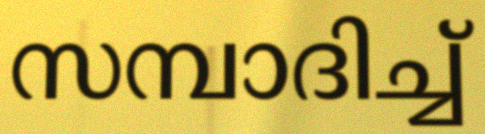
സമ്പാദിച്ച്